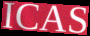
ICAS